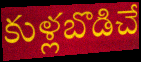
కుళ్లబొడిచే